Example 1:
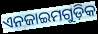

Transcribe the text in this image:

ଏନଜାଇମଗୁଡ଼ିକ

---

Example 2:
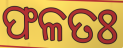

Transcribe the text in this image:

ଫଳତଃ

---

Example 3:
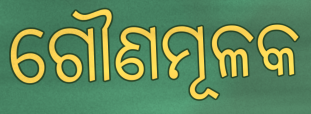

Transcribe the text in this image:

ଗୌଣମୂଳକ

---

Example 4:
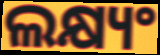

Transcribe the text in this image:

ଲକ୍ଷ୍ୟଂ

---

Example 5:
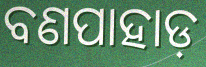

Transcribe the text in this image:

ବଣପାହାଡ଼